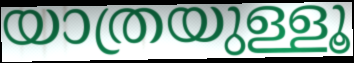
യാത്രയുള്ളൂ